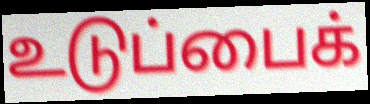
உடுப்பைக்